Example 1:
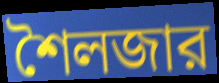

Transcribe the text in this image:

শৈলজার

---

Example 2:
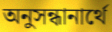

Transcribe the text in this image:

অনুসন্ধানার্থে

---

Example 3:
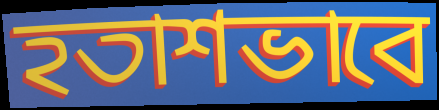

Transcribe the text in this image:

হতাশভাবে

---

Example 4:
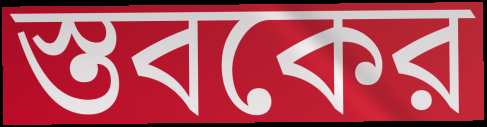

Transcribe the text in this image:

স্তবকের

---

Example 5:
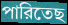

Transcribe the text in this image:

পারিতেছ